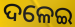
ଦଳେଇ